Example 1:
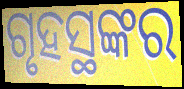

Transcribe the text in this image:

ଗୃହସ୍ଥଙ୍କର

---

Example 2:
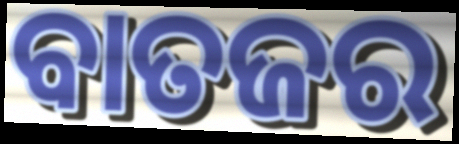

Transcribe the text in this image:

ବାତଜର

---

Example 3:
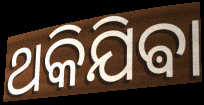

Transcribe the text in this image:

ଥକିଯିଵା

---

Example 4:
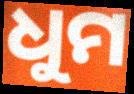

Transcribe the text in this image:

ଧୁମ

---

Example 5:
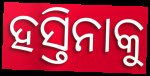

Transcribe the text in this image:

ହସ୍ତିନାକୁ